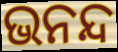
ଭନନ୍ଦ